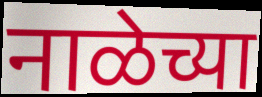
नाळेच्या